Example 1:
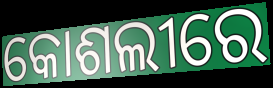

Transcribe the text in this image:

କୋଶଲୀରେ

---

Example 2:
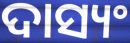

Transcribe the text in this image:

ଦାସ୍ୟଂ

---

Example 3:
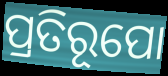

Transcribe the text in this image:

ପ୍ରତିରୂପୋ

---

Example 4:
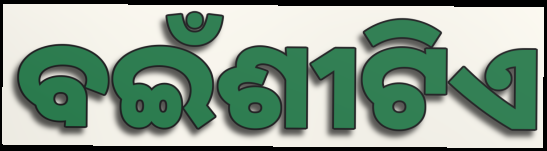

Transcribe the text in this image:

ବଇଁଶୀଟିଏ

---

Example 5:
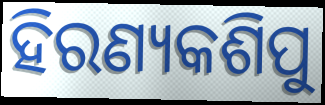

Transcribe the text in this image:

ହିରଣ୍ୟକଶିପୁ